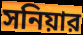
সনিয়ার